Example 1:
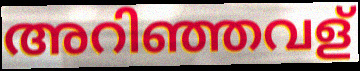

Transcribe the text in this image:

അറിഞ്ഞവള്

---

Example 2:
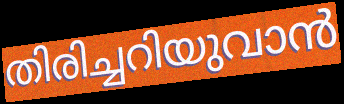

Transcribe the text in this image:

തിരിച്ചറിയുവാൻ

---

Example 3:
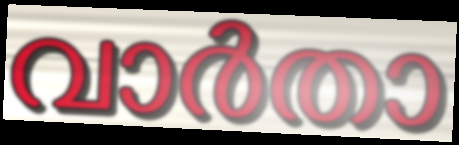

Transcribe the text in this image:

വാർതാ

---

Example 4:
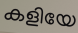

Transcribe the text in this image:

കളിയേ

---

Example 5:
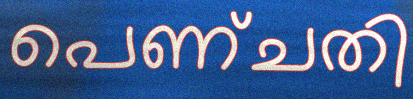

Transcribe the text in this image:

പെണ്ചതി